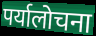
पर्यालोचना